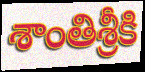
శాంతిశ్రీకి